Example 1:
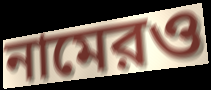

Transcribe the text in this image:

নামেরও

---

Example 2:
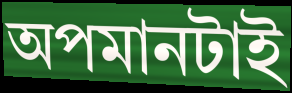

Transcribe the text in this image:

অপমানটাই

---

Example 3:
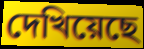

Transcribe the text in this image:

দেখিয়েছে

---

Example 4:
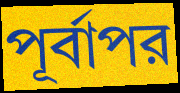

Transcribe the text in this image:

পূর্বাপর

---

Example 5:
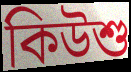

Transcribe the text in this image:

কিউশু